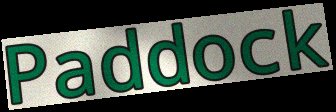
Paddock